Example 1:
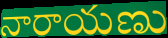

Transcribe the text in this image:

నారాయణు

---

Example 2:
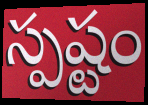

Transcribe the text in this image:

స్పష్టం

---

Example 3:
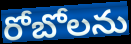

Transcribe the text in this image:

రోబోలను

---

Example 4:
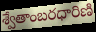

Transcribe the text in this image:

శ్వేతాంబరధారిణి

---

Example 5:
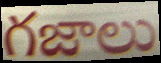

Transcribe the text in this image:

గజాలు